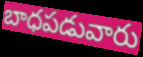
బాధపడువారు